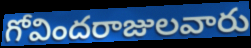
గోవిందరాజులవారు